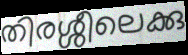
തിരശ്ശീലെക്കു